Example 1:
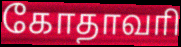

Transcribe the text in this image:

கோதாவரி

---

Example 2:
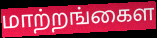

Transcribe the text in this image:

மாற்றங்கைள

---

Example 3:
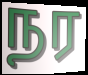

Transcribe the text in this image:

நர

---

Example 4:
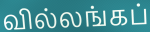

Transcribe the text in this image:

வில்லங்கப்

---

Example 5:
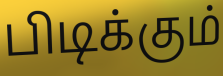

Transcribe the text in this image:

பிடிக்கும்